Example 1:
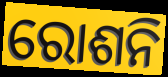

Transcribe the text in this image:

ରୋଶନି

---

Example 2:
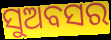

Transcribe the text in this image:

ସୁଅବସର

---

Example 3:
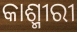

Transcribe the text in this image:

କାଶ୍ମୀରୀ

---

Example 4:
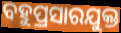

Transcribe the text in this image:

ବହୁପ୍ରସାରଯୁକ୍ତ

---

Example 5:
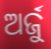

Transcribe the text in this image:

ଅର୍ଜୁ